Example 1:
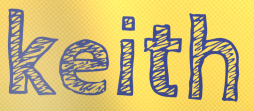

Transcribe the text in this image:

keith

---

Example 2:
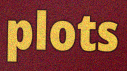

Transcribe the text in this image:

plots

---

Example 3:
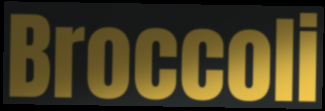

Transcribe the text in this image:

Broccoli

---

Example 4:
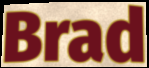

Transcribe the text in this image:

Brad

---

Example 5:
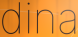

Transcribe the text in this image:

dina